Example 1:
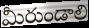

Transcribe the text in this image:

మీరుండాలి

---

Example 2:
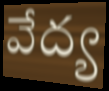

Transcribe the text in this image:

వేద్య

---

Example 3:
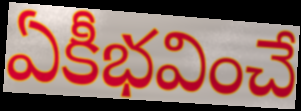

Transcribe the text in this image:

ఏకీభవించే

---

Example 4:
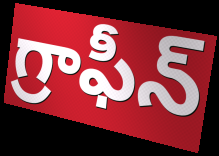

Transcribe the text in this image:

గ్రాఫీన్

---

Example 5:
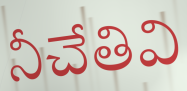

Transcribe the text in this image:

నీచేతివి